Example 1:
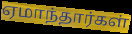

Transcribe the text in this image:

ஏமாந்தார்கள்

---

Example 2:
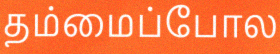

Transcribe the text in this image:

தம்மைப்போல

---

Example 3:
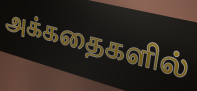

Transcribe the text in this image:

அக்கதைகளில்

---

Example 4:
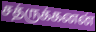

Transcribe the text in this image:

சத்ருக்கனன்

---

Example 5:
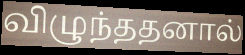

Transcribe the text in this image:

விழுந்ததனால்